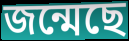
জন্মেছে